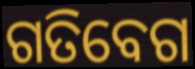
ଗତିବେଗ